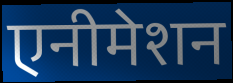
एनीमेशन